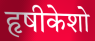
हृषीकेशो